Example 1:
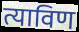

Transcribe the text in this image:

त्याविण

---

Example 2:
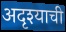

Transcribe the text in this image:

अदृश्याची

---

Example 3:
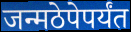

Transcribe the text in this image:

जन्मठेपेपर्यंत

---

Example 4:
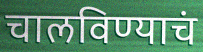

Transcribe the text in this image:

चालविण्याचं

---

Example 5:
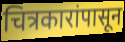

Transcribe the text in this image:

चित्रकारांपासून